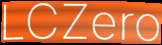
LCZero